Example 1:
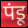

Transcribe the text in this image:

पंडू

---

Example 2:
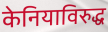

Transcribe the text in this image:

केनियाविरुद्ध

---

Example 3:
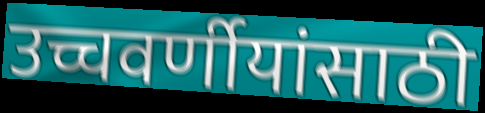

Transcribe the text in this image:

उच्चवर्णीयांसाठी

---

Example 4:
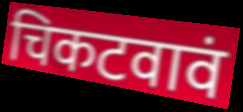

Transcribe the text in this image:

चिकटवावं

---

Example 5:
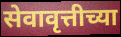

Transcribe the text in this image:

सेवावृत्तीच्या